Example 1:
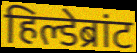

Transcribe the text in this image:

हिल्डेब्रांट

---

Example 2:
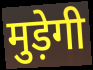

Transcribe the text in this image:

मुड़ेगी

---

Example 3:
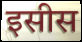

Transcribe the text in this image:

इसीस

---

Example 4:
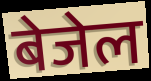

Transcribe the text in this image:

बेजेल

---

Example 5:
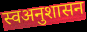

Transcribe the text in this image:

स्वअनुशासन